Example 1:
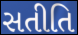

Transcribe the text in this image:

સતીતિ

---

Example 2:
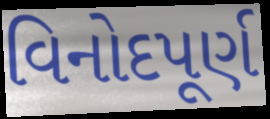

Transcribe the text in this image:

વિનોદપૂર્ણ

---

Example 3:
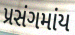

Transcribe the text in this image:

પ્રસંગમાંય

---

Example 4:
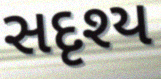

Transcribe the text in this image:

સદૃશ્ય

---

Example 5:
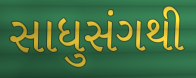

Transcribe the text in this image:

સાધુસંગથી